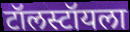
टॉलस्टॉयला